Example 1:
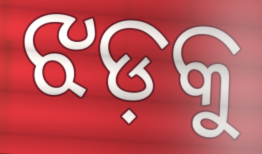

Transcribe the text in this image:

ଝଡ଼କୁ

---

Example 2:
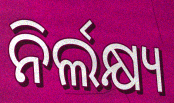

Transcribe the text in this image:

ନିର୍ଲକ୍ଷ୍ୟ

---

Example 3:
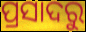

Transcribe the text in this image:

ପ୍ରସାଦରୁ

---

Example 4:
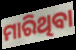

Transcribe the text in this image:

ମାରିଥିବା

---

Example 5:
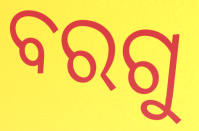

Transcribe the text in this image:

ବରଗୁ